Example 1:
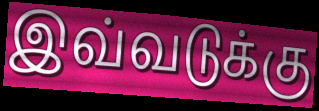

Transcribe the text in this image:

இவ்வடுக்கு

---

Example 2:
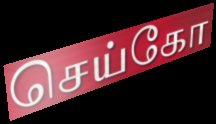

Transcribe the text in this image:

செய்கோ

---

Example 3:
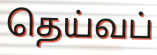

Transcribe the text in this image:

தெய்வப்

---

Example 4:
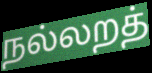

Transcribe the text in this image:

நல்லறத்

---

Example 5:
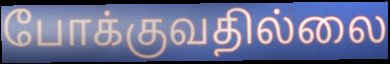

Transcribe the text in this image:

போக்குவதில்லை